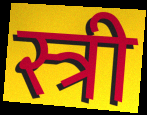
स्त्री